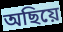
অছিয়ে